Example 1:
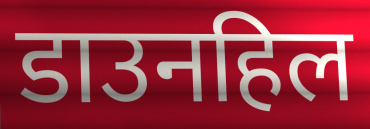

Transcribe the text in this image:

डाउनहिल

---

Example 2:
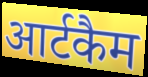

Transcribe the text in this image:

आर्टकैम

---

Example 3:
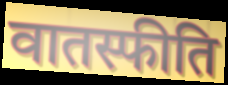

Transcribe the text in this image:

वातस्फीति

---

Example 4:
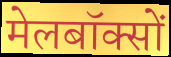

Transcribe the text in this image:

मेलबॉक्सों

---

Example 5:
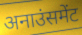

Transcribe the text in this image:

अनाउंसमेंट